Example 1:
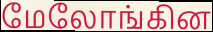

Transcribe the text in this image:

மேலோங்கின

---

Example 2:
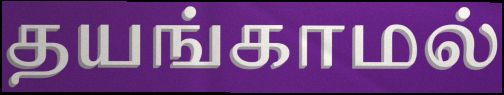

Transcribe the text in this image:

தயங்காமல்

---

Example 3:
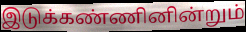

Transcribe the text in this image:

இடுக்கண்ணினின்றும்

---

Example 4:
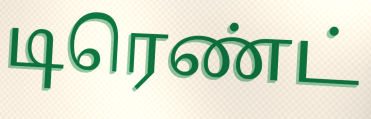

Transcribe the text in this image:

டிரெண்ட்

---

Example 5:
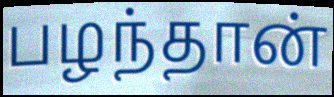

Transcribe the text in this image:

பழந்தான்